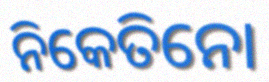
ନିକେତିନୋ